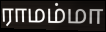
ராமம்மா